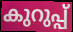
കുറുപ്പ്